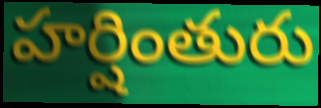
హర్షింతురు